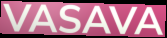
VASAVA